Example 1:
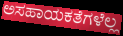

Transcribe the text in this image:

ಅಸಹಾಯಕತೆಗಳೆಲ್ಲ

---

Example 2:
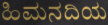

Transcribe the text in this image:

ಹಿಮನದಿಯ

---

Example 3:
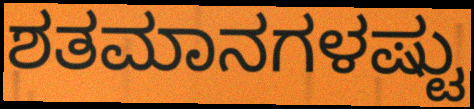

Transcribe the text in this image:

ಶತಮಾನಗಳಷ್ಟು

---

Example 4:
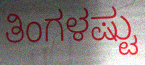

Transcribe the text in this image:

ತಿಂಗಳಷ್ಟು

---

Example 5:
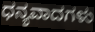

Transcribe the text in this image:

ಧನ್ಯವಾದಗಳು